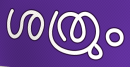
ശത്രും